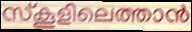
സ്കൂളിലെത്താൻ